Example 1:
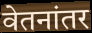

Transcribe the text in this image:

वेतनांतर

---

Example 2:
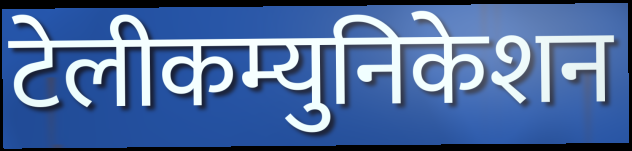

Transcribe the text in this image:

टेलीकम्युनिकेशन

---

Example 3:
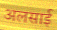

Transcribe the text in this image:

अलसाई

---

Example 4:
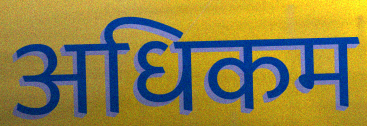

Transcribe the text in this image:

अधिकम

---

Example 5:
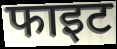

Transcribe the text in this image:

फाइट